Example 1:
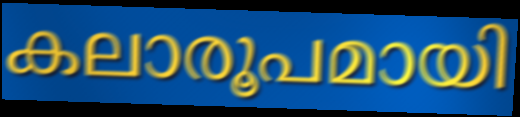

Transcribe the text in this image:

കലാരൂപമായി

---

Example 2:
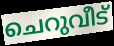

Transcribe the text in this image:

ചെറുവീട്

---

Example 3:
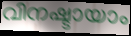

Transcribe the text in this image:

വിനഷ്ടായാം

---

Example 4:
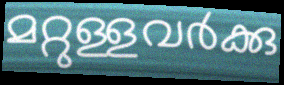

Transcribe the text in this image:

മറ്റുള്ളവർക്കു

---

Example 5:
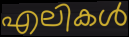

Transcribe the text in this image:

എലികൾ